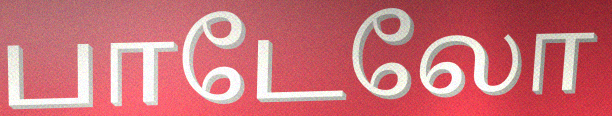
பாடேலோ